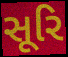
સૂરિ